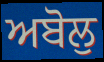
ਅਬੋਲੁ